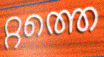
റ്റത്തെ